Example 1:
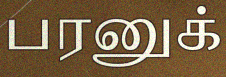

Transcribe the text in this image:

பரனுக்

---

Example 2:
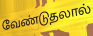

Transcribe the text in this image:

வேண்டுதலால்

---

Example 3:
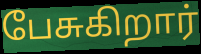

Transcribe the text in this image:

பேசுகிறார்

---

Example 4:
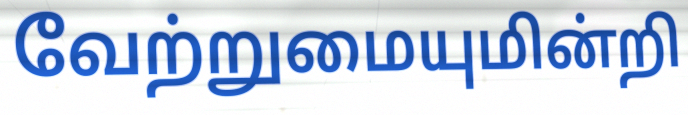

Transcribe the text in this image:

வேற்றுமையுமின்றி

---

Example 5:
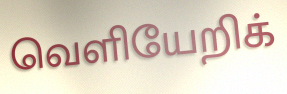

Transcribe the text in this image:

வெளியேறிக்